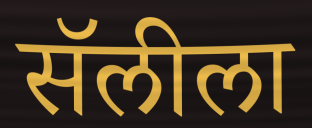
सॅलीला